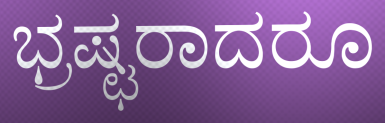
ಭ್ರಷ್ಟರಾದರೂ